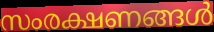
സംരക്ഷണങ്ങൾ